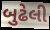
બુઢેલી